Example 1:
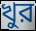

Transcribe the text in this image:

খুর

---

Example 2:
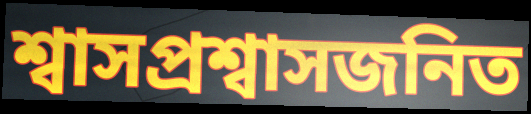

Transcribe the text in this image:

শ্বাসপ্রশ্বাসজনিত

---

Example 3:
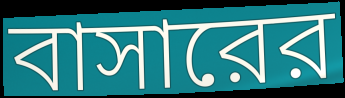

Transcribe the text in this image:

বাসারের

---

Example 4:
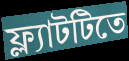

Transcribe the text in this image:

ফ্ল্যাটটিতে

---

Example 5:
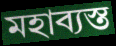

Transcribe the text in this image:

মহাব্যস্ত